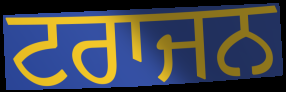
ਟਰਾਜਨ